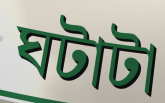
ঘটাটা